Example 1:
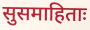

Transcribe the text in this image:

सुसमाहिताः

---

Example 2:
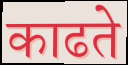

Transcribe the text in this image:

काढते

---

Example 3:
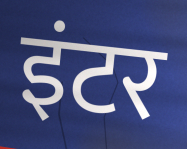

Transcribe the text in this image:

इंटर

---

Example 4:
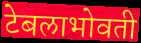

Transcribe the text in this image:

टेबलाभोवती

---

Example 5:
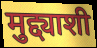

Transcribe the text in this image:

मुद्द्याशी